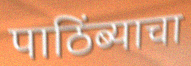
पाठिंब्याचा